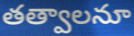
తత్వాలనూ